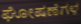
ಘೋಷಣೆಗಳ